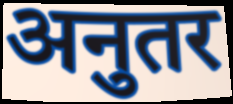
अनुतर